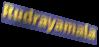
Rudrayamala